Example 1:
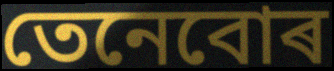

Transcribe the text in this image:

তেনেবোৰ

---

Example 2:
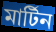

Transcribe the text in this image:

মাৰ্টিন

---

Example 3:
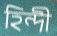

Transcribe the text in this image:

হিন্দী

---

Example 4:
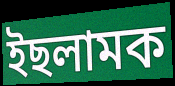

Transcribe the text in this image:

ইছলামক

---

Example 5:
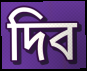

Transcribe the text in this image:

দিব